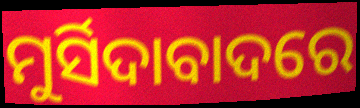
ମୁର୍ସିଦାବାଦରେ